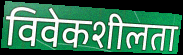
विवेकशीलता